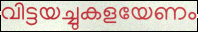
വിട്ടയച്ചുകളയേണം